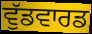
ਵੁੱਡਵਾਰਡ